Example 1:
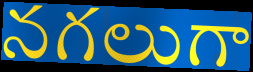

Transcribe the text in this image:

నగలుగా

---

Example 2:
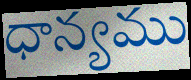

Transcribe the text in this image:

ధాన్యము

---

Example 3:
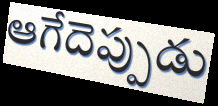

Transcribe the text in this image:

ఆగేదెప్పుడు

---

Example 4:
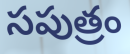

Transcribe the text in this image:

సపుత్రం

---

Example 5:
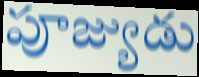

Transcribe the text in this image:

పూజ్యుడు